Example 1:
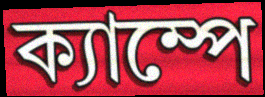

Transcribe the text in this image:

ক্যাম্পে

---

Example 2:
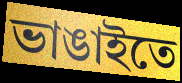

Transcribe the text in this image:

ভাঙাইতে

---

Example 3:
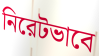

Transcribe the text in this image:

নিরেটভাবে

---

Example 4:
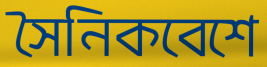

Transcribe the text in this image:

সৈনিকবেশে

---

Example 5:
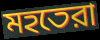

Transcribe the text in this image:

মহতেরা